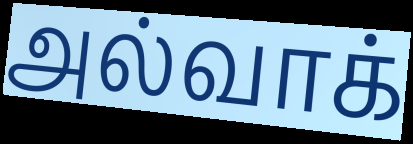
அல்வாக்